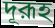
দূরূহ